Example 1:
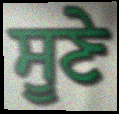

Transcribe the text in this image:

ਸੂਣੇ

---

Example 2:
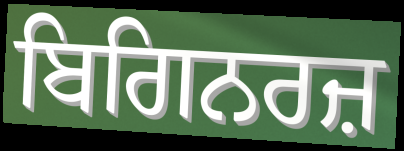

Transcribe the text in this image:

ਬਿਗਿਨਰਜ਼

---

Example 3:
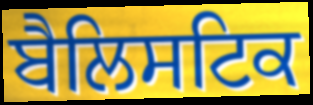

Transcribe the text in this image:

ਬੈਲਿਸਟਿਕ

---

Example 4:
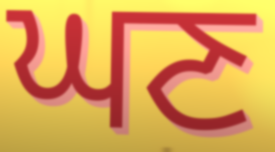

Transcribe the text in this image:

ਘਣ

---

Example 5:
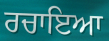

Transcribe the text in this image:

ਰਚਾਇਆ